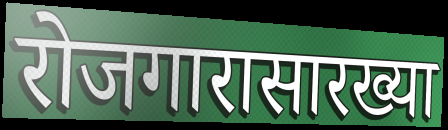
रोजगारासारख्या